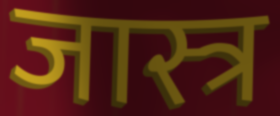
जास्त्र